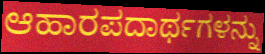
ಆಹಾರಪದಾರ್ಥಗಳನ್ನು